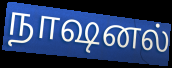
நாஷனல்